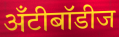
अँटीबॉडीज